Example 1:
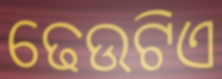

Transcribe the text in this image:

ଢେଉଟିଏ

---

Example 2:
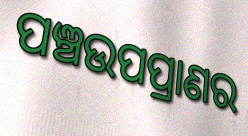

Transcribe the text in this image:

ପଞ୍ଚଉପପ୍ରାଣର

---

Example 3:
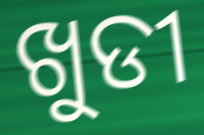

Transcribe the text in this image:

ଖୁଡୀ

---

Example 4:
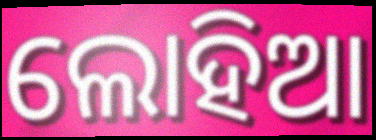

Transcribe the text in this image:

ଲୋହିଆ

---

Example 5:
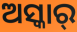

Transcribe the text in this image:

ଅସ୍କାର୍